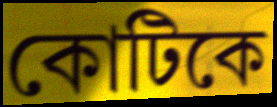
কোটিকে